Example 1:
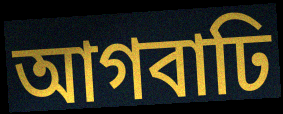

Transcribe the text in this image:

আগবাঢি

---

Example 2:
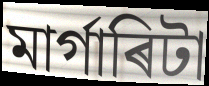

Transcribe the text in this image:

মাৰ্গাৰিটা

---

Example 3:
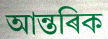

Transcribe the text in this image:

আন্তৰিক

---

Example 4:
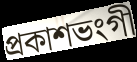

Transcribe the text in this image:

প্ৰকাশভংগী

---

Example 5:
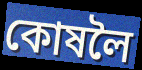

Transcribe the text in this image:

কোষলৈ